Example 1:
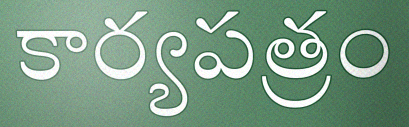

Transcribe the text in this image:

కార్యపత్రం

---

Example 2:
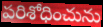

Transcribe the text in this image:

పరిశోధించును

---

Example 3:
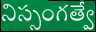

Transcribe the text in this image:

నిస్సంగత్వే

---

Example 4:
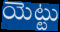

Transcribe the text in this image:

యెట్టు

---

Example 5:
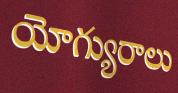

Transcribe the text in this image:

యోగ్యురాలు